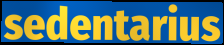
sedentarius